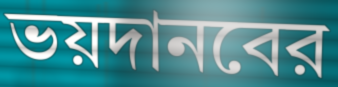
ভয়দানবের